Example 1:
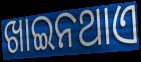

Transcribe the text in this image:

ଖାଇନଥାଏ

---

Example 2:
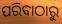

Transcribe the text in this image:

ପରିବାଠାରୁ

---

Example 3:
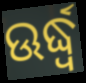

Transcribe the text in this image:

ଊର୍ଦ୍ଧ୍ବ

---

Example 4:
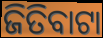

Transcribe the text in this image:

ଜିତିବାଟା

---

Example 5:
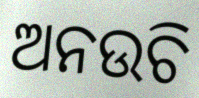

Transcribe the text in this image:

ଅନଉଚି